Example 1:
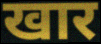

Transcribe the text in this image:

खार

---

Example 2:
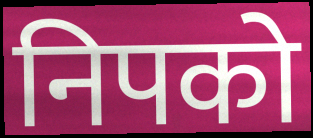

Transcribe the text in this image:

निपको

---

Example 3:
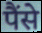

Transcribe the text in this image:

पैंसे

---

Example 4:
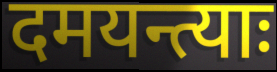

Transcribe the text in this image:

दमयन्त्याः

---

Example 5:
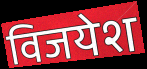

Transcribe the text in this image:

विजयेश